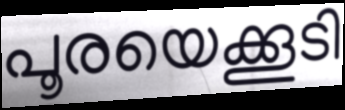
പൂരയെക്കൂടി